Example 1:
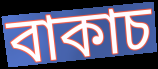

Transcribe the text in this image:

বাকাচ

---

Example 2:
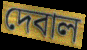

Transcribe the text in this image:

দেবাল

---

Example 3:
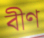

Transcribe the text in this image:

বীণ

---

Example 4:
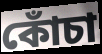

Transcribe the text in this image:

কোঁচা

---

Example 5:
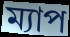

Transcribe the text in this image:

ম্যাপ